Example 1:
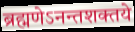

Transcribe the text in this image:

ब्रह्मणेऽनन्तशक्तये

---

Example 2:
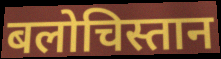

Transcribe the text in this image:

बलोचिस्तान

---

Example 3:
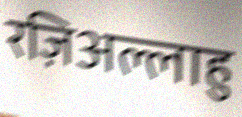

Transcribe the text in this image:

रज़िअल्लाहु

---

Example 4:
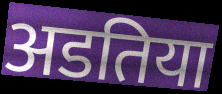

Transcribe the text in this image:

अडतिया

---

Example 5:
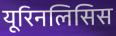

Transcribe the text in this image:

यूरिनलिसिस